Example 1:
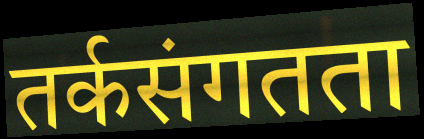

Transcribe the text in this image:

तर्कसंगतता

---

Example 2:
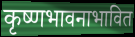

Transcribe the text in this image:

कृष्णभावनाभावित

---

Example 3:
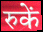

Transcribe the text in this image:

रुकें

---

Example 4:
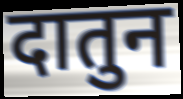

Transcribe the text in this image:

दातुन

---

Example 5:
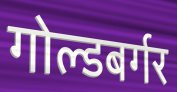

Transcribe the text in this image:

गोल्डबर्गर